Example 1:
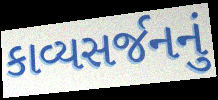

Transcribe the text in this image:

કાવ્યસર્જનનું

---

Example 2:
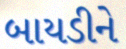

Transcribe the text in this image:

બાયડીને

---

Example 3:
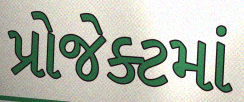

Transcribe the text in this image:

પ્રોજેક્ટમાં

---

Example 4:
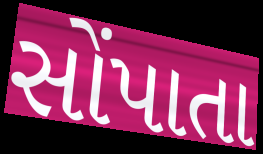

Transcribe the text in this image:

સોંપાતા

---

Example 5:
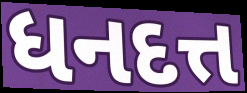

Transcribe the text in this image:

ધનદત્ત